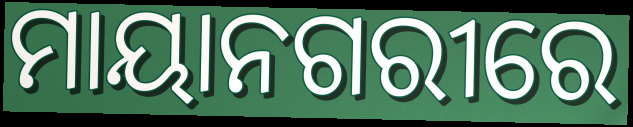
ମାୟାନଗରୀରେ